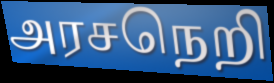
அரசநெறி